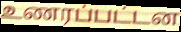
உணரப்பட்டன